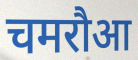
चमरौआ